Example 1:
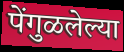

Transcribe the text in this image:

पेंगुळलेल्या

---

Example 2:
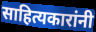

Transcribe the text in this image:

साहित्यकारांनी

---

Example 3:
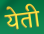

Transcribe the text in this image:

येती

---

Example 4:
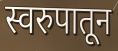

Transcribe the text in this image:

स्वरुपातून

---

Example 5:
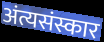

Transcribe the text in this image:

अंत्यसंस्कार